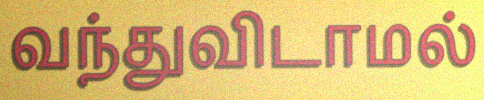
வந்துவிடாமல்